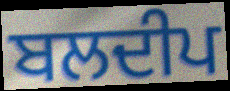
ਬਲਦੀਪ